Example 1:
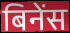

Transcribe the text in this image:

बिनेंस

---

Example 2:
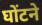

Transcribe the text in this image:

घोंटने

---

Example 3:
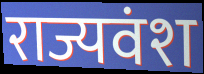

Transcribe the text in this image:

राज्यवंश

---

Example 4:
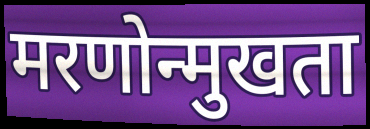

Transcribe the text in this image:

मरणोन्मुखता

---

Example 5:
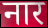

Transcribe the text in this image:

नार